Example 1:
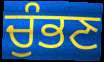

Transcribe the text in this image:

ਚੁੰਭਣ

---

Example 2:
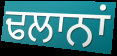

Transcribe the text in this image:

ਢਲਾਨਾਂ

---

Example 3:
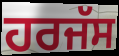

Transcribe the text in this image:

ਹਰਜੱਸ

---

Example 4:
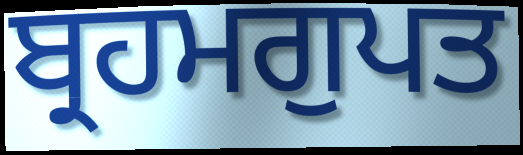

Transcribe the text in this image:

ਬ੍ਰਹਮਗੁਪਤ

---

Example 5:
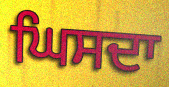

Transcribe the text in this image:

ਘਿਸਦਾ